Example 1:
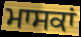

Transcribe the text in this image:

ਮਾਸਕਾਂ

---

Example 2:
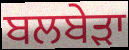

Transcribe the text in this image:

ਬਲਬੇਡ਼ਾ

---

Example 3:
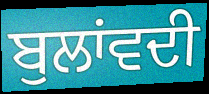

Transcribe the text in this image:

ਬੁਲਾਂਵਦੀ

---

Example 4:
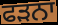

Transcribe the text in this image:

ਫੜਨਾ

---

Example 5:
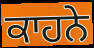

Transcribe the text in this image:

ਕਾਹਨੇ